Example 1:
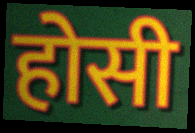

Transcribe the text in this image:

होसी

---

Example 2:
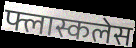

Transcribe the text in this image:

फ्लास्कलेस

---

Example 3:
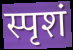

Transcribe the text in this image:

स्पृशं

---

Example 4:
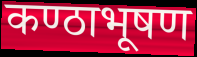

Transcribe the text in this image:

कण्ठाभूषण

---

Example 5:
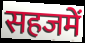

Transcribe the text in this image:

सहजमें